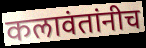
कलावंतांनीच